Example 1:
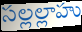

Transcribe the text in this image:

సల్లల్లాహు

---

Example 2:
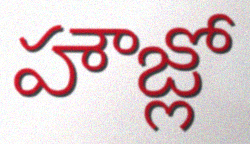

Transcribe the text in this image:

హౌజ్లో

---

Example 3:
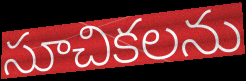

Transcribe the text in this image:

సూచికలను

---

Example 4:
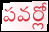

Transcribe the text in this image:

పవర్లో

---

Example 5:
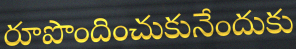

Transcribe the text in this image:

రూపొందించుకునేందుకు